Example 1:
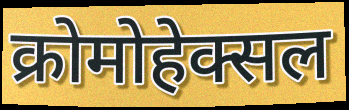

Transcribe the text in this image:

क्रोमोहेक्सल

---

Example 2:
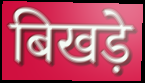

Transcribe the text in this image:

बिखड़े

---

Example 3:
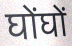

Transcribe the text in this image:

घोंघों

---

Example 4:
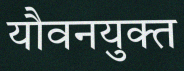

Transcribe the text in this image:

यौवनयुक्त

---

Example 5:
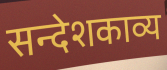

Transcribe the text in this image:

सन्देशकाव्य